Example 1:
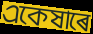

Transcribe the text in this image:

একেষাৰে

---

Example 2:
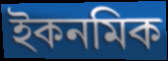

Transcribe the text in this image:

ইকনমিক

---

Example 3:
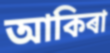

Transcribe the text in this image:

আকিৰা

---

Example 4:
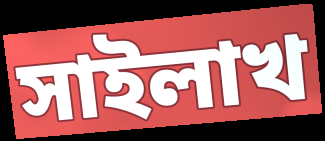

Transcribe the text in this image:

সাইলাখ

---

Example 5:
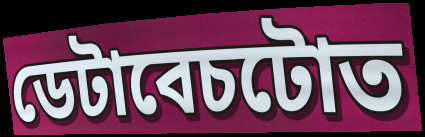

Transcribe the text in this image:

ডেটাবেচটোত